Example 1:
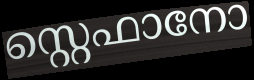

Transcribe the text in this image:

സ്റ്റെഫാനോ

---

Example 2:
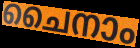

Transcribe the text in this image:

ചൈനാം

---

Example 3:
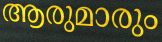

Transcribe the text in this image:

ആരുമാരും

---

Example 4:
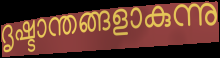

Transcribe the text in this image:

ദൃഷ്ടാന്തങ്ങളാകുന്നു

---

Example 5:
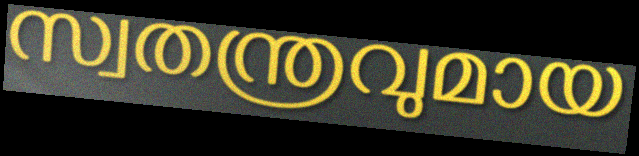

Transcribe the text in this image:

സ്വതന്ത്രവുമായ